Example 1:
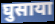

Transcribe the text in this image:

घुसाया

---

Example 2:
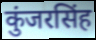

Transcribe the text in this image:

कुंजरसिंह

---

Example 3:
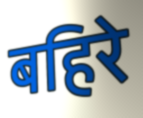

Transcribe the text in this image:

बहिरे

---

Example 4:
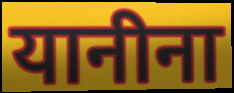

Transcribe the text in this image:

यानीना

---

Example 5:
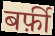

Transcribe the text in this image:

बर्फ़ी